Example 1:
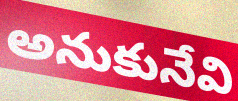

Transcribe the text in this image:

అనుకునేవి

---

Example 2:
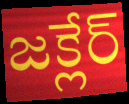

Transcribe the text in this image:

జక్లేర్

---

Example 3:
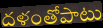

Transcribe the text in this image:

దళంతోపాటు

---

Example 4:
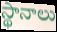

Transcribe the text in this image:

స్థానాలు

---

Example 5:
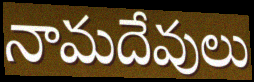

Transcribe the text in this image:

నామదేవులు